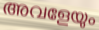
അവളേയും